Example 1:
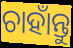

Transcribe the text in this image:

ଚାହାଁନ୍ତୁ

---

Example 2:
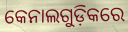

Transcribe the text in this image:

କେନାଲଗୁଡ଼ିକରେ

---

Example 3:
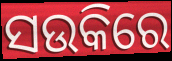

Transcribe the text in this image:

ସଉକିରେ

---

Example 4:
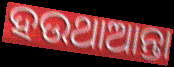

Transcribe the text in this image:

ହଉଥାଆନ୍ତା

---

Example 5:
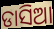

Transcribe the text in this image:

ଡାସିଆ